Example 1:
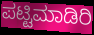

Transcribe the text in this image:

ಪಟ್ಟಿಮಾಡಿರಿ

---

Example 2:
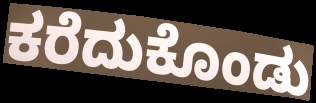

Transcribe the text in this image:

ಕರೆದುಕೊಂಡು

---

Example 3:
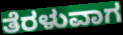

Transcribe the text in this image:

ತೆರಳುವಾಗ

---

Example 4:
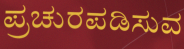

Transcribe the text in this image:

ಪ್ರಚುರಪಡಿಸುವ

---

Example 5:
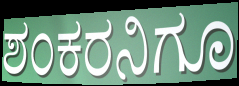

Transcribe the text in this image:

ಶಂಕರನಿಗೂ